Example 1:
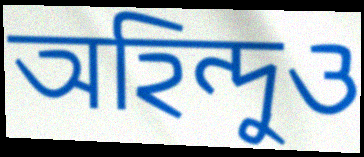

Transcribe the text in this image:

অহিন্দুও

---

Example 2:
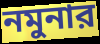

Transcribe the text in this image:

নমুনার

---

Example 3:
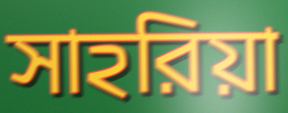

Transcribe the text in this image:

সাহরিয়া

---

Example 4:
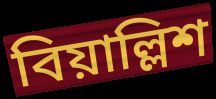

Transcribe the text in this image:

বিয়াল্লিশ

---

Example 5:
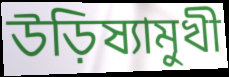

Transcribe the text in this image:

উড়িষ্যামুখী